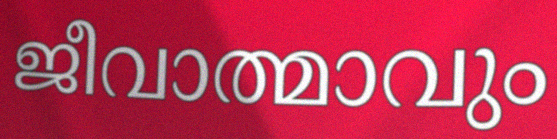
ജീവാത്മാവും